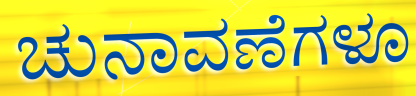
ಚುನಾವಣೆಗಳೂ